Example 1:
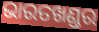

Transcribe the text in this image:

ଭାରତଖଣ୍ଡର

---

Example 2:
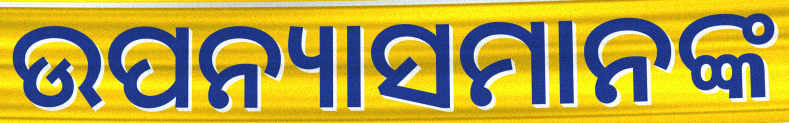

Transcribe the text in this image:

ଉପନ୍ୟାସମାନଙ୍କ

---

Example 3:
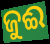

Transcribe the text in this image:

ଜୁଈ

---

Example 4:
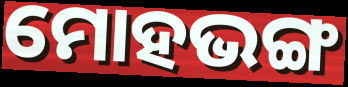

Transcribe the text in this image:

ମୋହଭଙ୍ଗ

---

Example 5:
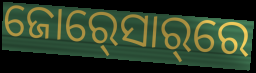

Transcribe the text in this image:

ଜୋର୍‍ସୋର୍‌ରେ